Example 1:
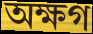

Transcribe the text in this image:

অক্ষগ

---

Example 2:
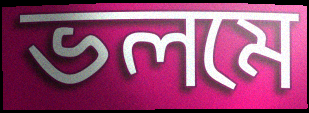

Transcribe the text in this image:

ভলমে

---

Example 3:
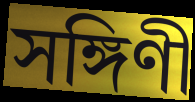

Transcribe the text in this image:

সঙ্গিণী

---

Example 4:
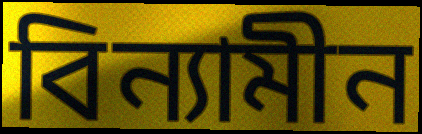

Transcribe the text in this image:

বিন্যামীন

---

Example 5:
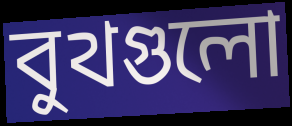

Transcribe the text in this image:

বুথগুলো